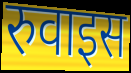
रुवाइस